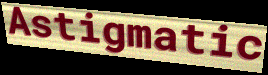
Astigmatic